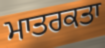
ਮਾਤਰਕਤਾ